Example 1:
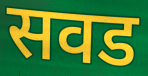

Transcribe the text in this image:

सवड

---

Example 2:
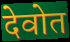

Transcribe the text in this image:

देवोत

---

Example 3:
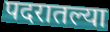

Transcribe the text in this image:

पदरातल्या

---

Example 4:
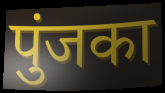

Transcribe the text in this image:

पुंजका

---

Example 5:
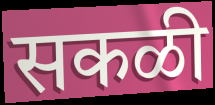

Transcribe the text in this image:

सकळी